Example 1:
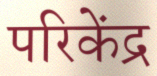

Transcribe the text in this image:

परिकेंद्र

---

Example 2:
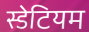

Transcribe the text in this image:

स्डेटियम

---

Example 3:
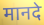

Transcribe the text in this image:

मानदे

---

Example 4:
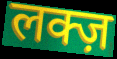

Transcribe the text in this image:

लक्ज़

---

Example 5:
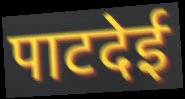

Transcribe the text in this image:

पाटदेई